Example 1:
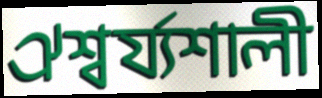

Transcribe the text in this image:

ঐশ্বর্য্যশালী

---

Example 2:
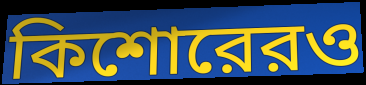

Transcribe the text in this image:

কিশোরেরও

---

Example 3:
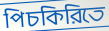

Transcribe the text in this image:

পিচকিরিতে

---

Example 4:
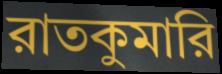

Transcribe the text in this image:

রাতকুমারি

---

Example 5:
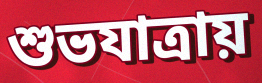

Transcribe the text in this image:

শুভযাত্রায়